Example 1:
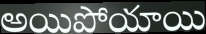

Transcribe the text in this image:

అయిపోయాయి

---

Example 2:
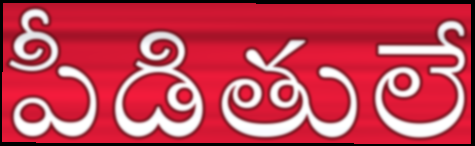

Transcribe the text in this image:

పీడితులే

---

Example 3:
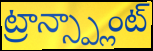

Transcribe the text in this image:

ట్రాన్స్ప్లాంట్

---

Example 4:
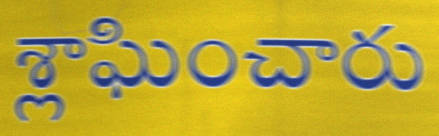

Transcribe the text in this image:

శ్లాఘించారు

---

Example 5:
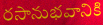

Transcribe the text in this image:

రసానుభవానికి